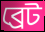
ব্রেট